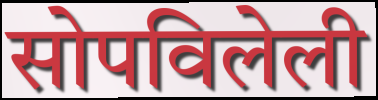
सोपविलेली